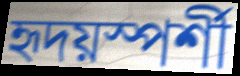
হৃদয়স্পর্শী